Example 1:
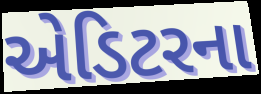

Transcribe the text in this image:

એડિટરના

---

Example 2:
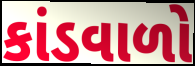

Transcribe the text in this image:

કાંડવાળો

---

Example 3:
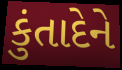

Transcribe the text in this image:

કુંતાદેને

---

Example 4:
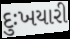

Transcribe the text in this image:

દુઃખયારી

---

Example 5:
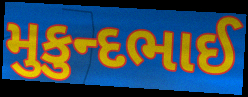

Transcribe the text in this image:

મુકુન્દભાઈ